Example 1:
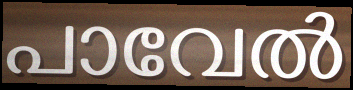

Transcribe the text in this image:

പാവേൽ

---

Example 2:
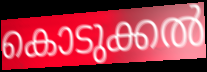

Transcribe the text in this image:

കൊടുക്കൽ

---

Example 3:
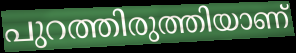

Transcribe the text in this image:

പുറത്തിരുത്തിയാണ്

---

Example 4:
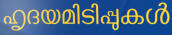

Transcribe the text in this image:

ഹൃദയമിടിപ്പുകൾ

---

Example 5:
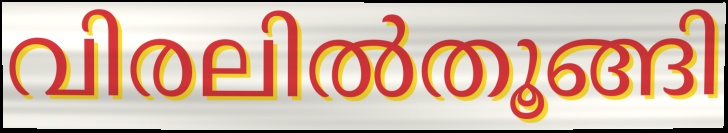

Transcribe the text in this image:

വിരലിൽതൂങ്ങി